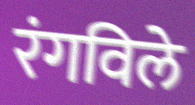
रंगविले